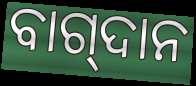
ବାଗ୍‍ଦାନ